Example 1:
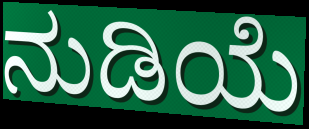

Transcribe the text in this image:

ನುಡಿಯೆ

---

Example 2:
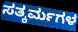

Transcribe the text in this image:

ಸತ್ಕರ್ಮಗಳ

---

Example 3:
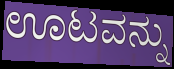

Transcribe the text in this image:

ಊಟವನ್ನು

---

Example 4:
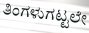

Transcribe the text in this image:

ತಿಂಗಳುಗಟ್ಟಲೇ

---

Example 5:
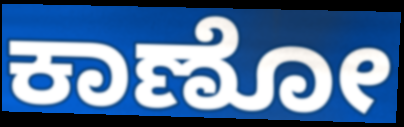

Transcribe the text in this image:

ಕಾಣೋ